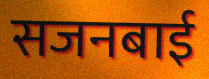
सजनबाई